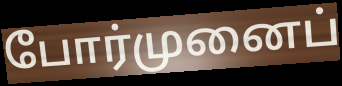
போர்முனைப்